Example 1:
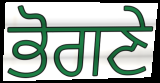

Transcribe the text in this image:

ਭੋਗਣੇ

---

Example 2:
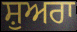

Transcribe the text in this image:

ਸ਼ੁਅਰਾ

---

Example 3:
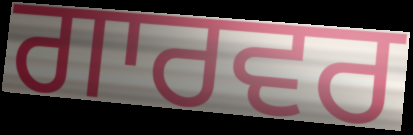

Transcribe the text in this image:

ਗਾਰਵਰ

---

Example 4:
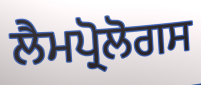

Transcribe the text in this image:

ਲੈਮਪ੍ਰੋਲੋਗਸ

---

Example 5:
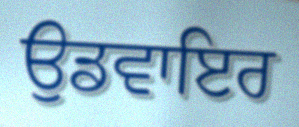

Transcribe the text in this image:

ਉਡਵਾਇਰ